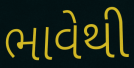
ભાવેથી